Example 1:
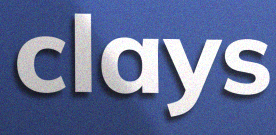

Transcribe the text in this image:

clays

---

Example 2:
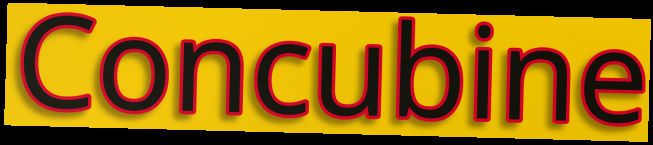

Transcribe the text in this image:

Concubine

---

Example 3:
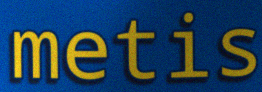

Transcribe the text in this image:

metis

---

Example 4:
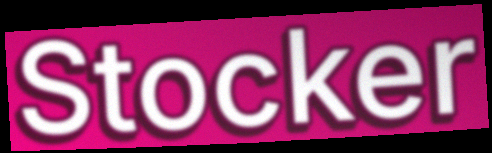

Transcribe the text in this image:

Stocker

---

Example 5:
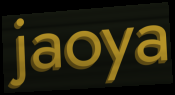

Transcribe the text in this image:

jaoya